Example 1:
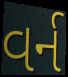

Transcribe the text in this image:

વર્ન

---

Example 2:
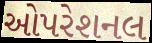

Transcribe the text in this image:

ઓપરેશનલ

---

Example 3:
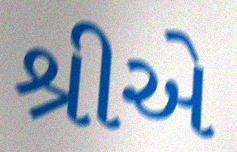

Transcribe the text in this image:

શ્રીએ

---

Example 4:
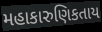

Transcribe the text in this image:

મહાકારુણિકતાય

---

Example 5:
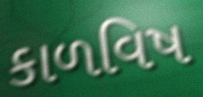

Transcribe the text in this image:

કાળવિષ